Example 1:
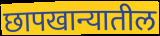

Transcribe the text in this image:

छापखान्यातील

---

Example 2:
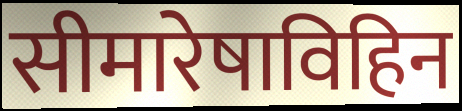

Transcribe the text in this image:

सीमारेषाविहिन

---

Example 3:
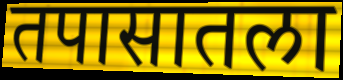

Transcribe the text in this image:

तपासातला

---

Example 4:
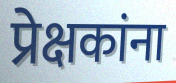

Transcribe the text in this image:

प्रेक्षकांना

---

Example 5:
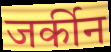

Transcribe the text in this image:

जर्कीन